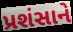
પ્રશંસાને